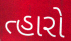
ત્હારો